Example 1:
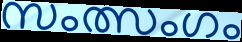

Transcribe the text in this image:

സംത്സംഗം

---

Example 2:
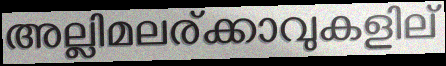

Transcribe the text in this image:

അല്ലിമലര്ക്കാവുകളില്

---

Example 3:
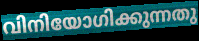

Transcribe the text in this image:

വിനിയോഗിക്കുന്നതു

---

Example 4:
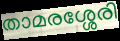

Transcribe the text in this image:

താമരശ്ശേരി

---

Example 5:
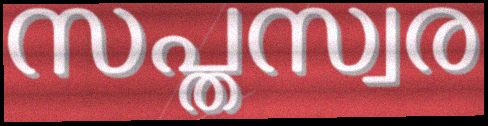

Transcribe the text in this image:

സപ്തസ്വര